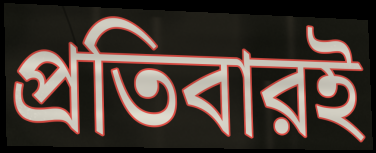
প্রতিবারই